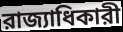
রাজ্যাধিকারী